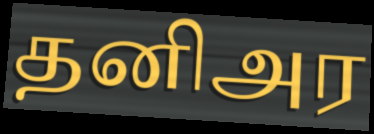
தனிஅர